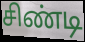
சிண்டி